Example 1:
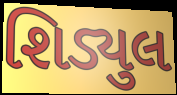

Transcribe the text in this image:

શિડ્યુલ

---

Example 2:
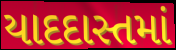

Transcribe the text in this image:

યાદદાસ્તમાં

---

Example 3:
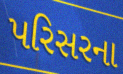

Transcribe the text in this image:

પરિસરના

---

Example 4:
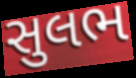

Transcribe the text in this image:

સુલભ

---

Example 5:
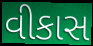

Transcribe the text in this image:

વીકાસ